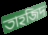
তাহজিদ